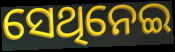
ସେଥିନେଇ